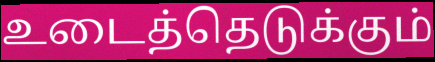
உடைத்தெடுக்கும்